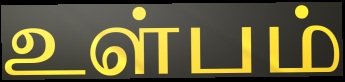
உள்பம்